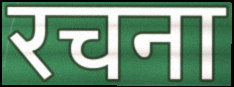
रचना